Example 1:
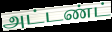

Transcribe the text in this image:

அட்டண்ட்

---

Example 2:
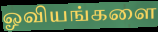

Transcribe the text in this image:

ஓவியங்களை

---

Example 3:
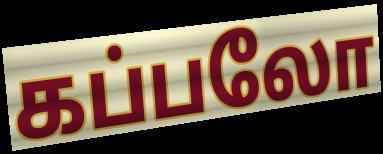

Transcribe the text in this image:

கப்பலோ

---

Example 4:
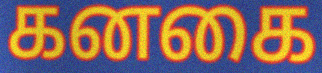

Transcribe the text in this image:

கனகை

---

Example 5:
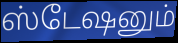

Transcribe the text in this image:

ஸ்டேஷனும்